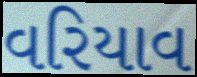
વરિયાવ